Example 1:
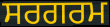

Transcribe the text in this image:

ਸਰਗਰਮ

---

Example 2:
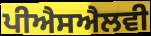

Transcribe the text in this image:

ਪੀਐਸਐਲਵੀ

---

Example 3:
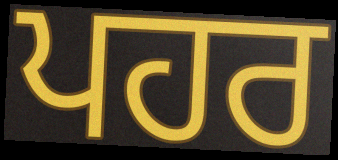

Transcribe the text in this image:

ਪਹਰ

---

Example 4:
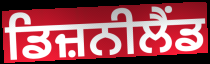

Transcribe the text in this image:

ਡਿਜ਼ਨੀਲੈਂਡ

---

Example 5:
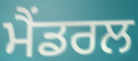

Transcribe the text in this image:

ਮੈਂਡਰਲ